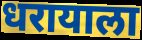
धरायाला